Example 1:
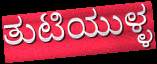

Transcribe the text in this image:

ತುಟಿಯುಳ್ಳ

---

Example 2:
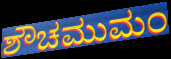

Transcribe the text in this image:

ಶೌಚಮುಮಂ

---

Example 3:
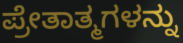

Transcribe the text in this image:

ಪ್ರೇತಾತ್ಮಗಳನ್ನು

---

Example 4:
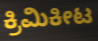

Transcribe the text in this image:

ಕ್ರಿಮಿಕೀಟ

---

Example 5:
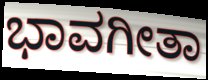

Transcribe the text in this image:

ಭಾವಗೀತಾ